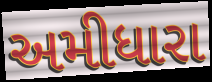
અમીધારા